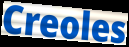
Creoles